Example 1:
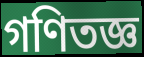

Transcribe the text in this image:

গণিতজ্ঞ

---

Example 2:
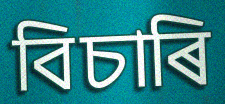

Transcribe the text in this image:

বিচাৰি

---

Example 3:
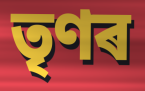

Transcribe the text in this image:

তৃণৰ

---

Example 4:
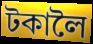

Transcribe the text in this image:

টকালৈ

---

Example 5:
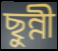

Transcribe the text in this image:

ছুন্নী